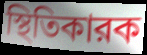
স্থিতিকারক